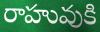
రాహువుకి